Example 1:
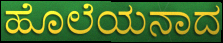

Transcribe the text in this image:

ಹೊಲೆಯನಾದ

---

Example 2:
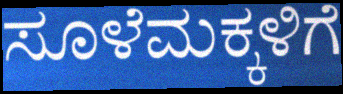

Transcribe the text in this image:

ಸೂಳೆಮಕ್ಕಳಿಗೆ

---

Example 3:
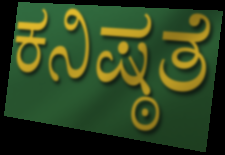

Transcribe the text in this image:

ಕನಿಷ್ಠತೆ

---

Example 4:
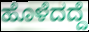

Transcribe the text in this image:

ಹೊಳೆದದ್ದೆ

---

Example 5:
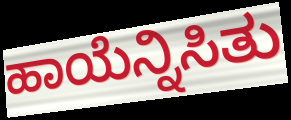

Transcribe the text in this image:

ಹಾಯೆನ್ನಿಸಿತು